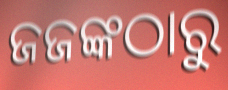
ଜଜଙ୍କଠାରୁ